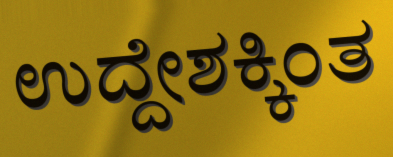
ಉದ್ದೇಶಕ್ಕಿಂತ